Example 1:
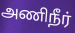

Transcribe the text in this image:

அணிநீர்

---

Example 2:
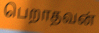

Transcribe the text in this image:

பெறாதவன்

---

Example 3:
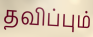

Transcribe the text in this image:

தவிப்பும்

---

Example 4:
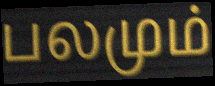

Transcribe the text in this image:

பலமும்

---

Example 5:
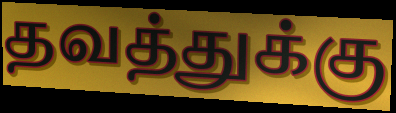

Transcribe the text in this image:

தவத்துக்கு